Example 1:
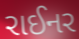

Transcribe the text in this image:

રાઈનર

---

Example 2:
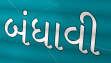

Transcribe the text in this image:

બંધાવી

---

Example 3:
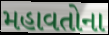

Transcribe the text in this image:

મહાવતોના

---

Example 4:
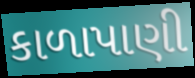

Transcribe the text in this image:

કાળાપાણી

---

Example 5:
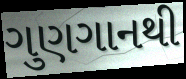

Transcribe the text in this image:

ગુણગાનથી